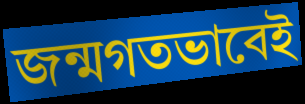
জন্মগতভাবেই